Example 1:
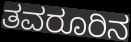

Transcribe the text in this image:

ತವರೂರಿನ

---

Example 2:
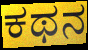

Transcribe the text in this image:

ಕಥನ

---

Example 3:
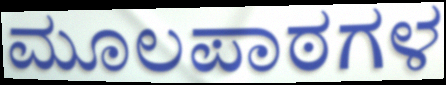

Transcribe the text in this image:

ಮೂಲಪಾಠಗಳ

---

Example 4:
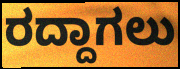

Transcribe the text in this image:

ರದ್ದಾಗಲು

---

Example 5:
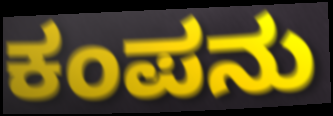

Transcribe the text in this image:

ಕಂಪನು